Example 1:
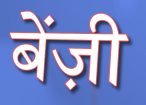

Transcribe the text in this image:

बेंज़ी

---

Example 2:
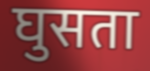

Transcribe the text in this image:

घुसता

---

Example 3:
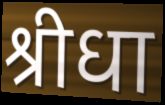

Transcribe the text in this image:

श्रीधा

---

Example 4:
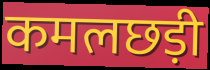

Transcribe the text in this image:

कमलछड़ी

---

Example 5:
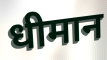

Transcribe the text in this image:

धीमान